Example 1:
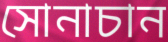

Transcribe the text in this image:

সোনাচান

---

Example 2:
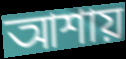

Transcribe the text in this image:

আশায়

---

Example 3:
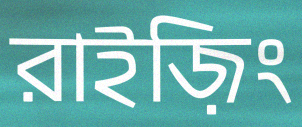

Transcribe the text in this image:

রাইজ়িং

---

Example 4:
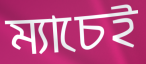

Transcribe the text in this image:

ম্যাচেই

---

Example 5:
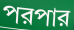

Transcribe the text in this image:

পরপার